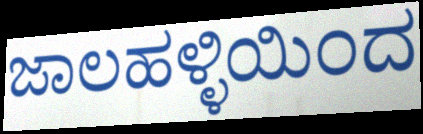
ಜಾಲಹಳ್ಳಿಯಿಂದ